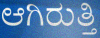
ಆಗಿರುತ್ತಿ